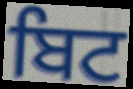
ਬਿਟ